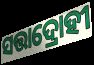
ସତ୍ତାଦ୍ରୋହୀ